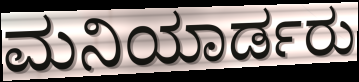
ಮನಿಯಾರ್ಡರು